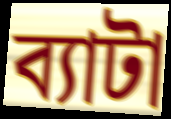
ব্যাটা